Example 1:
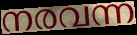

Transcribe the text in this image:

നരവന്ന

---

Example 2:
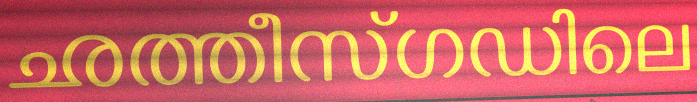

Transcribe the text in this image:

ഛത്തീസ്ഗഡിലെ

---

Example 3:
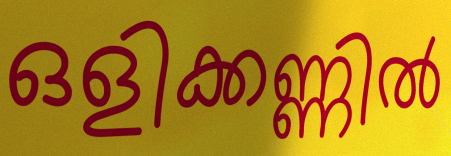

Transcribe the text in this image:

ഒളിക്കണ്ണിൽ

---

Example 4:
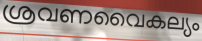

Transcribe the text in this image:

ശ്രവണവൈകല്യം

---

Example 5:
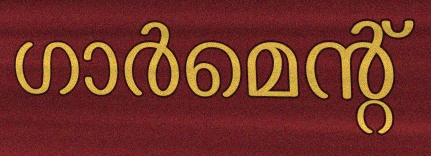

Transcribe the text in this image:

ഗാർമെന്റ്